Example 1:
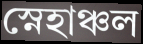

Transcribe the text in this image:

স্নেহাঞ্চল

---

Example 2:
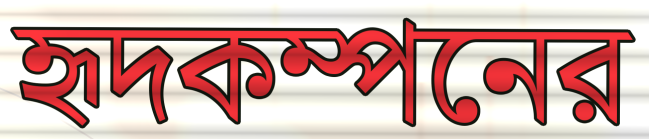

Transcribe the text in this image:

হৃদকম্পনের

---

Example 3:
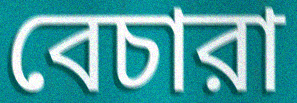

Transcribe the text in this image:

বেচারা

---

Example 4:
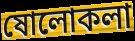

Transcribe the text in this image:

ষোলোকলা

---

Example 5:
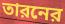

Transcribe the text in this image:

তারনের